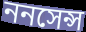
ননসেন্স